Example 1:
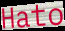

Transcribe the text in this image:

Hato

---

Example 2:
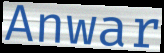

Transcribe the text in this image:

Anwar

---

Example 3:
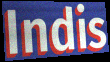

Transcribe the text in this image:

Indis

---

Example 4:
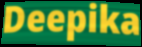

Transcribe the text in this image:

Deepika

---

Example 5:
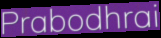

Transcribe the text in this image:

Prabodhrai